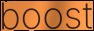
boost